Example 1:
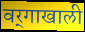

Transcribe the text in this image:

वर्गाखाली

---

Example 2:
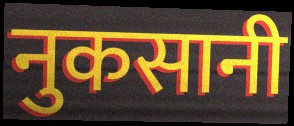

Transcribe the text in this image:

नुकसानी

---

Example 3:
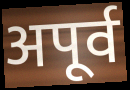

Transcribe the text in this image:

अपूर्व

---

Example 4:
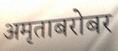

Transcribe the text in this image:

अमृताबरोबर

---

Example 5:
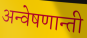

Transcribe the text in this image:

अन्वेषणान्ती